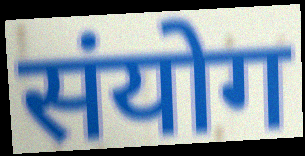
संयोग